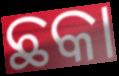
ଛକା